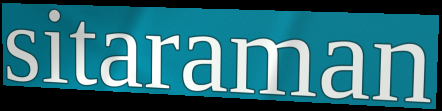
sitaraman